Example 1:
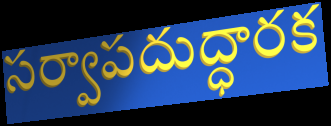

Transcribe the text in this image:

సర్వాపదుద్ధారక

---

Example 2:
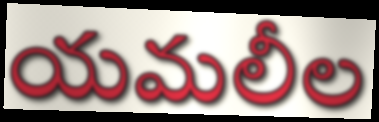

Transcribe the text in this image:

యమలీల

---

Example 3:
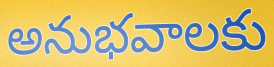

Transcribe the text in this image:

అనుభవాలకు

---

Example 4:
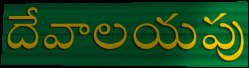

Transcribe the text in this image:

దేవాలయపు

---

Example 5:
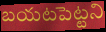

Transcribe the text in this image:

బయటపెట్టని